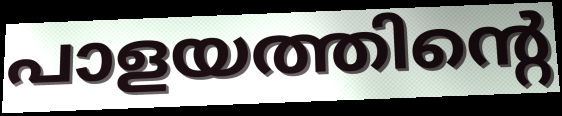
പാളയത്തിന്റെ